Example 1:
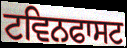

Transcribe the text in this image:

ਟਵਿਨਫਾਸਟ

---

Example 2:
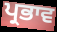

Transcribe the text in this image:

ਪ੍ਰਭਾਵ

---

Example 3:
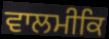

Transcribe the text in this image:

ਵਾਲਮੀਕਿ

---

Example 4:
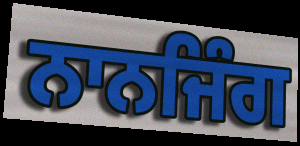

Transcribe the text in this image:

ਨਾਨਜਿੰਗ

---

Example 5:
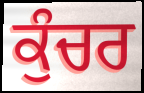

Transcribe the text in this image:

ਕੁੰਚਰ